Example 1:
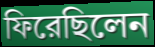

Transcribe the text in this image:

ফিরেছিলেন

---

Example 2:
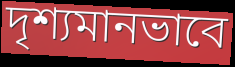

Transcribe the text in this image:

দৃশ্যমানভাবে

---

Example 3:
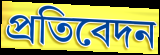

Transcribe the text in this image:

প্রতিবেদন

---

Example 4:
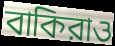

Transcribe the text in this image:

বাকিরাও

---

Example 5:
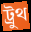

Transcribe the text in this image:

ট্রুথ